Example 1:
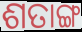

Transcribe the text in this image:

ଶତାଙ୍ଗ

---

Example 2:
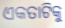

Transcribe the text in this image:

ଏକତାଟିକୁ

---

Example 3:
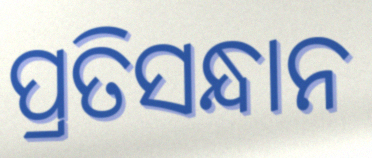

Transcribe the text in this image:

ପ୍ରତିସନ୍ଧାନ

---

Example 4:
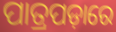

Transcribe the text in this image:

ପାତ୍ରପଡ଼ାରେ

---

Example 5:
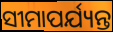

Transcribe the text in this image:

ସୀମାପର୍ଯ୍ୟନ୍ତ